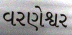
વરણેશ્વર